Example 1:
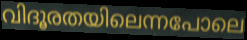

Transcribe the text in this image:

വിദൂരതയിലെന്നപോലെ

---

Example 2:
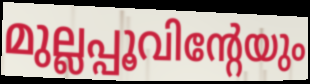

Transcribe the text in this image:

മുല്ലപ്പൂവിന്റേയും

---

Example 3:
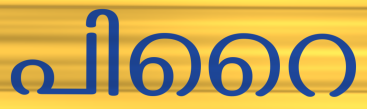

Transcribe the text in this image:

പിറൈ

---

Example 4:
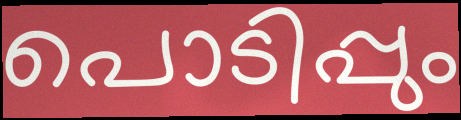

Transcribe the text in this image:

പൊടിപ്പും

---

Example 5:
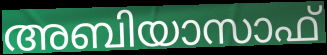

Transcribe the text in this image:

അബിയാസാഫ്